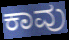
ಕಾವು